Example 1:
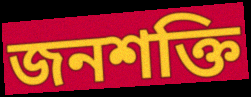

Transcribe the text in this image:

জনশক্তি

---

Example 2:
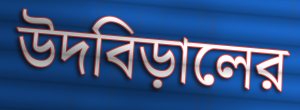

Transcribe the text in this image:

উদবিড়ালের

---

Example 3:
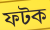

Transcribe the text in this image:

ফটক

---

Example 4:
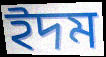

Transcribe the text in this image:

ইদম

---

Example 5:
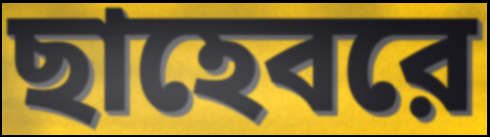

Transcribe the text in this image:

ছাহেবরে